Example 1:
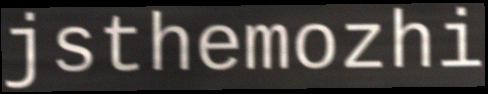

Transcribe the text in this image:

jsthemozhi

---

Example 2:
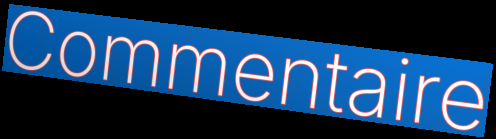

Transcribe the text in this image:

Commentaire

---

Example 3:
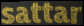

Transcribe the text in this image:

sattar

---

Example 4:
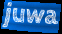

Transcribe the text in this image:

juwa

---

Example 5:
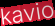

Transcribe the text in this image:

kavio